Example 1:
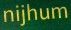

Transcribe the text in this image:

nijhum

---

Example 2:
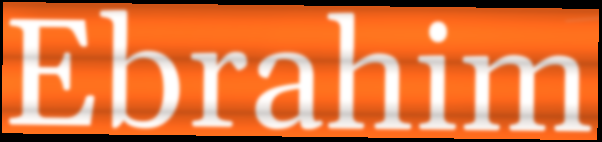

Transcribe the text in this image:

Ebrahim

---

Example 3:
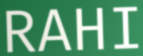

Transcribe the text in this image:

RAHI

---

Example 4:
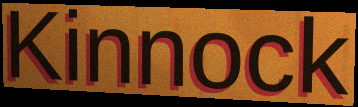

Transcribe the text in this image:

Kinnock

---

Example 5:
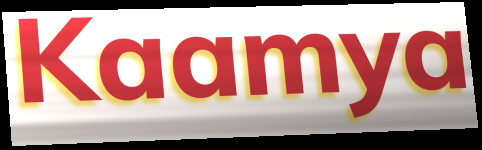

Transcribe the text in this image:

Kaamya